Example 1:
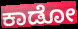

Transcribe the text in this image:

ಕಾಡೋ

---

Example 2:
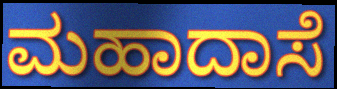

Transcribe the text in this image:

ಮಹಾದಾಸೆ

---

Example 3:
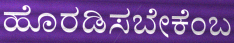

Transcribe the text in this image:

ಹೊರಡಿಸಬೇಕೆಂಬ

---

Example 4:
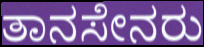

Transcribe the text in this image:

ತಾನಸೇನರು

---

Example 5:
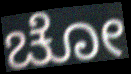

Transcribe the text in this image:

ಚೋ